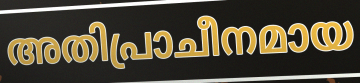
അതിപ്രാചീനമായ